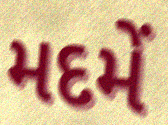
મદમેં